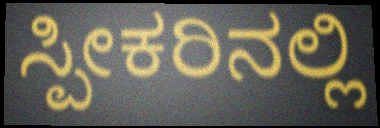
ಸ್ಪೀಕರಿನಲ್ಲಿ